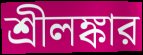
শ্রীলঙ্কার